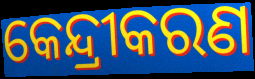
କେନ୍ଦ୍ରୀକରଣ